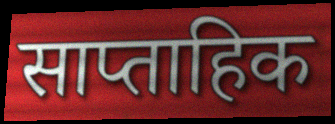
साप्ताहिक